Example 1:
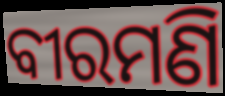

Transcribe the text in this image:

ବୀରମଣି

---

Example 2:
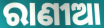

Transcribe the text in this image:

ରାଣୀଆ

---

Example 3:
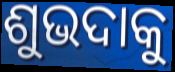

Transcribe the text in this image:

ଶୁଭଦାକୁ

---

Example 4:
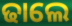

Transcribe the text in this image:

ଢାଲେ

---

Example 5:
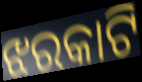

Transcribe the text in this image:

ଝରକାଟି